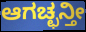
ಆಗಚ್ಛನ್ತೀ